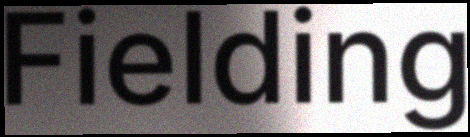
Fielding